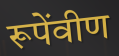
रूपेंवीण